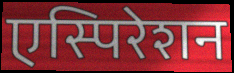
एस्पिरेशन